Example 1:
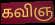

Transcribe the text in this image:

கவிஞ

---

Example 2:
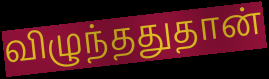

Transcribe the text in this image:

விழுந்ததுதான்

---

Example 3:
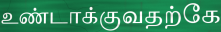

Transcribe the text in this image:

உண்டாக்குவதற்கே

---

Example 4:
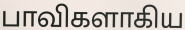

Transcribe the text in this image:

பாவிகளாகிய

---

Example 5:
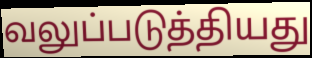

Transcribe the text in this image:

வலுப்படுத்தியது